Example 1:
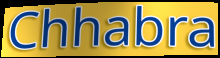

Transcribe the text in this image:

Chhabra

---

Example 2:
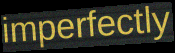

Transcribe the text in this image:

imperfectly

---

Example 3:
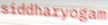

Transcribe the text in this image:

siddharyogam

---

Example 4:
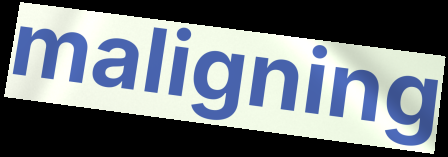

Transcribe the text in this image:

maligning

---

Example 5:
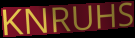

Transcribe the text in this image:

KNRUHS